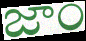
జాం